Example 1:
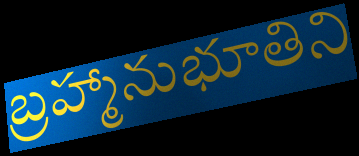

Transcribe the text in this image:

బ్రహ్మానుభూతిని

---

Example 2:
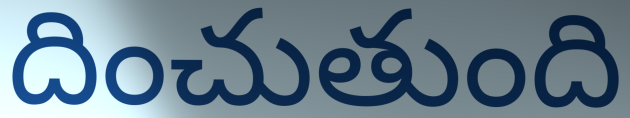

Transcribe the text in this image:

దించుతుంది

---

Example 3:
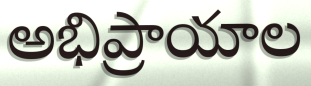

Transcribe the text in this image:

అభిప్రాయాల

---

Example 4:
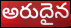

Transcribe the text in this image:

అరుదైన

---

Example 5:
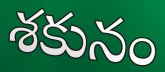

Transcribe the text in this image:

శకునం